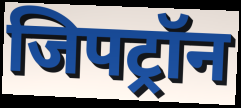
जिपट्रॉन